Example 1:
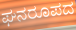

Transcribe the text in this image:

ಘನರೂಪದ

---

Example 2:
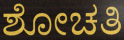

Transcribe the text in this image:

ಶೋಚತಿ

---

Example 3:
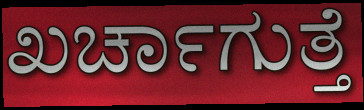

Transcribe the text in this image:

ಖರ್ಚಾಗುತ್ತೆ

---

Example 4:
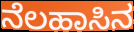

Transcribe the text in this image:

ನೆಲಹಾಸಿನ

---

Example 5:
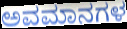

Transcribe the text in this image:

ಅವಮಾನಗಳ